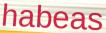
habeas